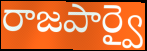
రాజపార్వై